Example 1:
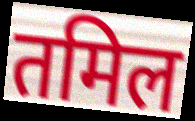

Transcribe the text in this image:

तमिल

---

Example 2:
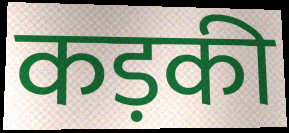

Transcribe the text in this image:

कड़की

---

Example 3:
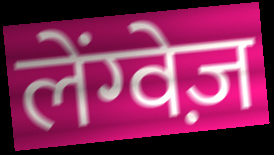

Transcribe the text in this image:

लेंग्वेज़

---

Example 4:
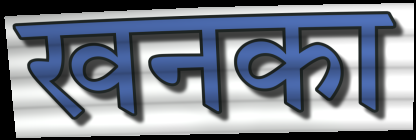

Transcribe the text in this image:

खनका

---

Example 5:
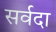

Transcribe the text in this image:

सर्वदा